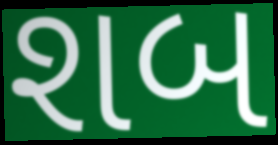
શબ